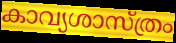
കാവ്യശാസ്ത്രം